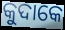
କୁଦାକେ